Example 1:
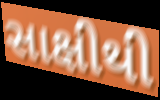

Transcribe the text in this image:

સાક્ષીથી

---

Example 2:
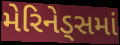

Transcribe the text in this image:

મેરિનેડ્સમાં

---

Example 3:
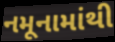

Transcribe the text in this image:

નમૂનામાંથી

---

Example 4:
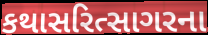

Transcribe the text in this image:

કથાસરિત્સાગરના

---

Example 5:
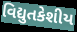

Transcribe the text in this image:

વિદ્યુતકેશીય